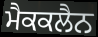
ਮੈਕਕਲੈਨ